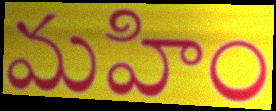
మహిం